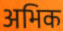
अभिक